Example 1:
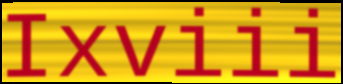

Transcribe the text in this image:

Ixviii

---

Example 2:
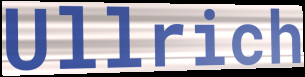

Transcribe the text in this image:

Ullrich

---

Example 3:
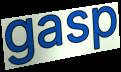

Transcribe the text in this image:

gasp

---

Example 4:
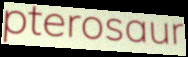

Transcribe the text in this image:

pterosaur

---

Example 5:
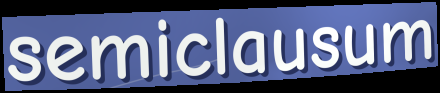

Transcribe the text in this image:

semiclausum